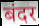
बंदर